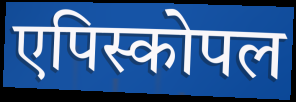
एपिस्कोपल